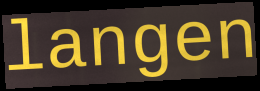
langen